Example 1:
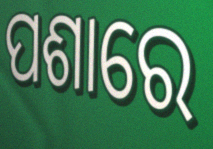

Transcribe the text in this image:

ପଶାରେ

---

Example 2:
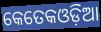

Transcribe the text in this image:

କେତେକଓଡ଼ିଆ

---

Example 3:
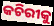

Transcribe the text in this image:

କଚିରୀକୁ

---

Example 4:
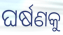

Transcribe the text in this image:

ଘର୍ଷଣକୁ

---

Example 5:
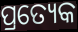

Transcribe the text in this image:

ପ୍ରତ୍ୟେକ